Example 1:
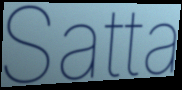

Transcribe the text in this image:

Satta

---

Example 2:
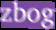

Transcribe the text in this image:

zbog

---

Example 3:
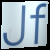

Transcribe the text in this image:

Jf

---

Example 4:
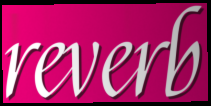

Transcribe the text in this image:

reverb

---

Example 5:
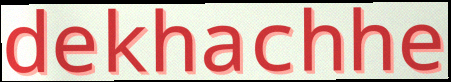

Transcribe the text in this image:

dekhachhe